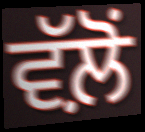
ਵੱਲ਼ੋਂ